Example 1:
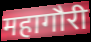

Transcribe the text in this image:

महागौरी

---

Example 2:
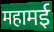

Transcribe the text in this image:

महामई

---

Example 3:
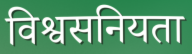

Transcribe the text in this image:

विश्वसनियता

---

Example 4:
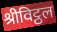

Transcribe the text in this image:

श्रीविट्ठल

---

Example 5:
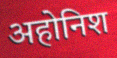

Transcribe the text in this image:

अहोनिश